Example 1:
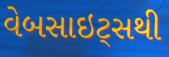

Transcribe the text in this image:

વેબસાઇટ્સથી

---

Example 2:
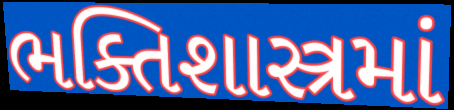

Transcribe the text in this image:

ભક્તિશાસ્ત્રમાં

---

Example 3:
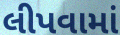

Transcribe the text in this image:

લીપવામાં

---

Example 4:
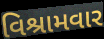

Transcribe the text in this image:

વિશ્રામવાર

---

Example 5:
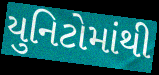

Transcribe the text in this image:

યુનિટોમાંથી